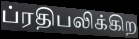
ப்ரதிபலிக்கிற